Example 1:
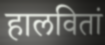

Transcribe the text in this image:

हालवितां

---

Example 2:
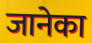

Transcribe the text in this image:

जानेका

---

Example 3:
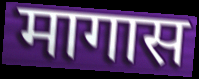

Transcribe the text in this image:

मागास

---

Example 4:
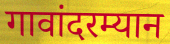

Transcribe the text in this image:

गावांदरम्यान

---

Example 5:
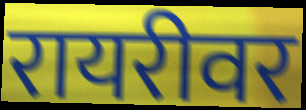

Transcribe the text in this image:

रायरीवर